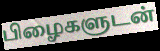
பிழைகளுடன்